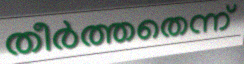
തീർത്തതെന്ന്